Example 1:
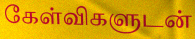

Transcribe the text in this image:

கேள்விகளுடன்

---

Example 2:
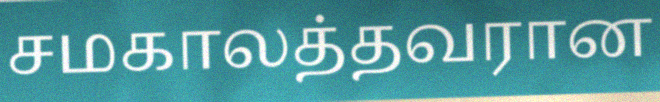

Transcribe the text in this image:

சமகாலத்தவரான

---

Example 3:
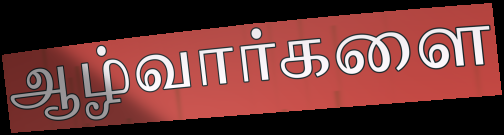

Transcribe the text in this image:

ஆழ்வார்களை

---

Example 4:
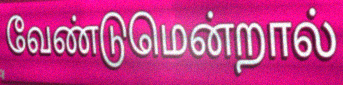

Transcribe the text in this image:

வேண்டுமென்றால்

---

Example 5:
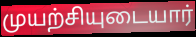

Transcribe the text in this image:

முயற்சியுடையார்